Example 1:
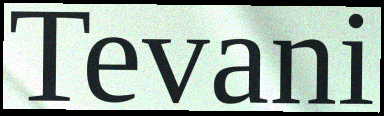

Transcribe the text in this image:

Tevani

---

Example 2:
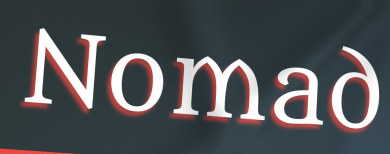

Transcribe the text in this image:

Nomad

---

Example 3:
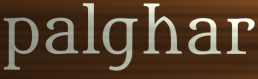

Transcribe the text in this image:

palghar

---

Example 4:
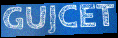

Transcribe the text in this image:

GUJCET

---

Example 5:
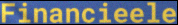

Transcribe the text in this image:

Financieele